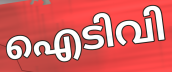
ഐടിവി